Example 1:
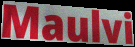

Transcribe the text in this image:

Maulvi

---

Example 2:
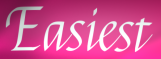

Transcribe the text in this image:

Easiest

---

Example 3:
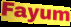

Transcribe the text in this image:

Fayum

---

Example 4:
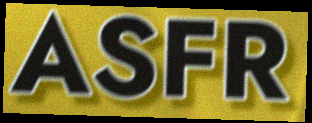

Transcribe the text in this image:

ASFR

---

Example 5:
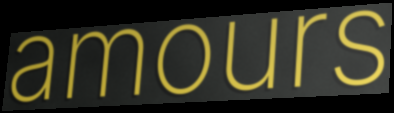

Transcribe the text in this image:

amours